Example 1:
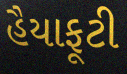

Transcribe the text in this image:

હૈયાફૂટી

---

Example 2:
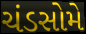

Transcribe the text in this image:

ચંડસોમે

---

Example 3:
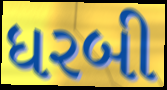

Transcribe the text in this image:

ધરબી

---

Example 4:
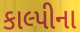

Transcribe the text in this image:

કાલ્પીના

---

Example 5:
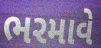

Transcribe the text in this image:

ભરમાવે